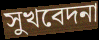
সুখবেদনা